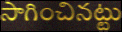
సాగించినట్టు